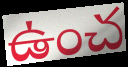
ఉంచ